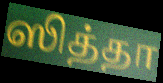
ஸித்தா